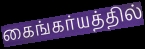
கைங்கர்யத்தில்